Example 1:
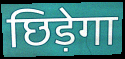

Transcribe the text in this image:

छिड़ेगा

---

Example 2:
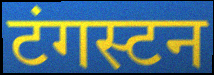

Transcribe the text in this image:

टंगस्टन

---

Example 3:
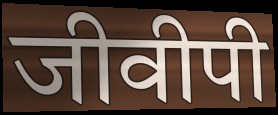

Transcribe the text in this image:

जीवीपी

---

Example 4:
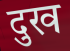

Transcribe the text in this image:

दुख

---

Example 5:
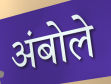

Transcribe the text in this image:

अंबोले